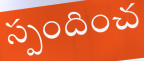
స్పందించ